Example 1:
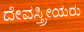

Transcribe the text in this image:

ದೇವಸ್ತ್ರೀಯರು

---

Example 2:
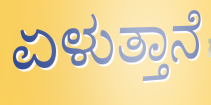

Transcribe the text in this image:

ಏಳುತ್ತಾನೆ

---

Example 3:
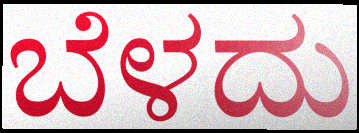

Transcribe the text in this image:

ಬೆಳದು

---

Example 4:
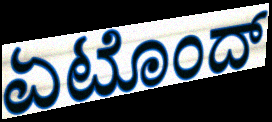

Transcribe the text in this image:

ಏಟೊಂದ್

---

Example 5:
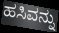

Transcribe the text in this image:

ಹಸಿವನ್ನು